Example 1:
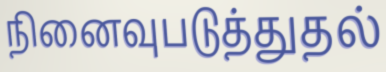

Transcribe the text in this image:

நினைவுபடுத்துதல்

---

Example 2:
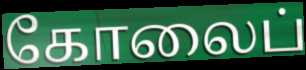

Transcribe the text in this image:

கோலைப்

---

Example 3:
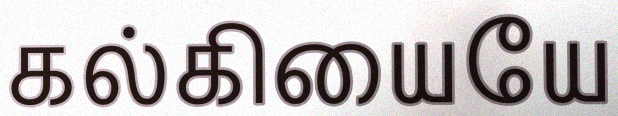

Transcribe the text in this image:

கல்கியையே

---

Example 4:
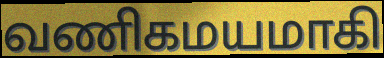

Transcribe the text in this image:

வணிகமயமாகி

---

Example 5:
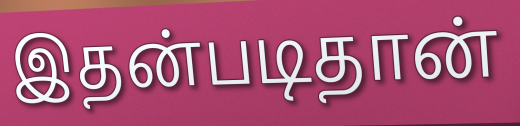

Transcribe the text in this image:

இதன்படிதான்